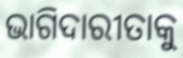
ଭାଗିଦାରୀତାକୁ